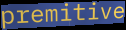
premitive